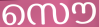
സൌ